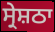
ਸ੍ਰੇਸ਼ਠਾ